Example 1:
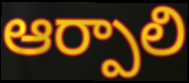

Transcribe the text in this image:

ఆర్పాలి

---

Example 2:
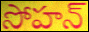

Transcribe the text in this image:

సోహన్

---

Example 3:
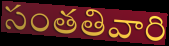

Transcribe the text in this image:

సంతతివారి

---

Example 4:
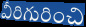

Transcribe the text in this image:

వీరిగురించి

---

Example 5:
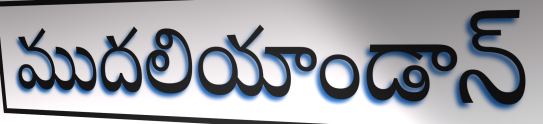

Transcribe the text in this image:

ముదలియాండాన్